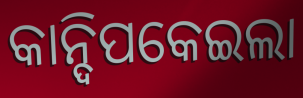
କାନ୍ଦିପକେଇଲା